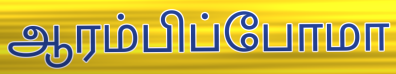
ஆரம்பிப்போமா